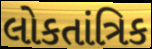
લોકતાંત્રિક